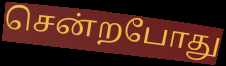
சென்றபோது